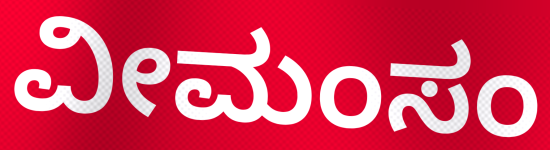
ವೀಮಂಸಂ